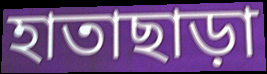
হাতাছাড়া